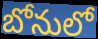
బోనులో